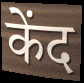
केंद